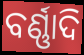
ବର୍ଣ୍ଣାଦି